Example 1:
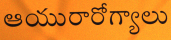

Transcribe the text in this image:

ఆయురారోగ్యాలు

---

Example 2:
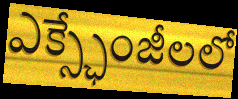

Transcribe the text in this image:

ఎక్స్ఛేంజీలలో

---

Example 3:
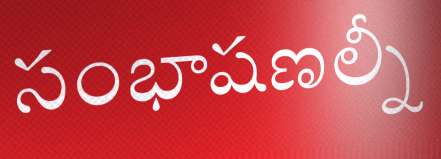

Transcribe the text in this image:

సంభాషణల్నీ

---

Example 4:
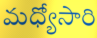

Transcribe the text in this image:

మధ్యోసారి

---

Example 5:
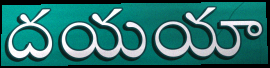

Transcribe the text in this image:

దయయా